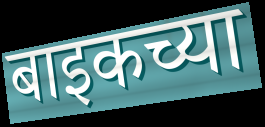
बाइकच्या